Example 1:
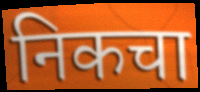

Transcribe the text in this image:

निकचा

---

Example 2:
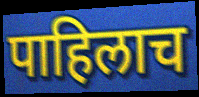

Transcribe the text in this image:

पाहिलाच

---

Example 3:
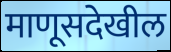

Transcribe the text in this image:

माणूसदेखील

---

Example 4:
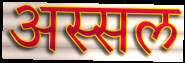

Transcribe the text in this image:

अस्सल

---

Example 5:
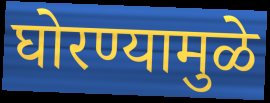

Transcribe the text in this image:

घोरण्यामुळे